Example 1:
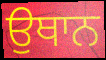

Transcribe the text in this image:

ਉਥਾਨ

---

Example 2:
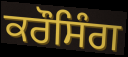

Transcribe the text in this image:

ਕਰੌਸਿੰਗ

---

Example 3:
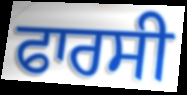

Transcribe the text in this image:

ਫਾਰਸੀ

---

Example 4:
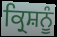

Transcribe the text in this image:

ਕ੍ਰਿਸ਼ਨੂੰ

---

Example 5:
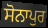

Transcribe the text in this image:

ਸੋਨਾਪੁਰ